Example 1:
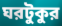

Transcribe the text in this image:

ঘরটুকুর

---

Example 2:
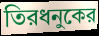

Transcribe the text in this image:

তিরধনুকের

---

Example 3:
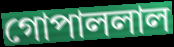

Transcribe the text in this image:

গোপাললাল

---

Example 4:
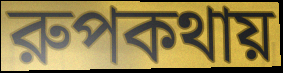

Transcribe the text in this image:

রুপকথায়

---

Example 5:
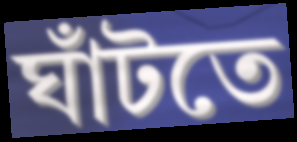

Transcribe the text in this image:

ঘাঁটতে